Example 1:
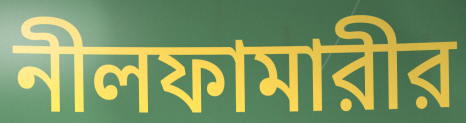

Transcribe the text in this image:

নীলফামারীর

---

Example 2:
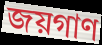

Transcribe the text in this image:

জয়গাণ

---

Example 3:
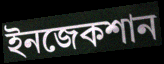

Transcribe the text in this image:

ইনজেকশান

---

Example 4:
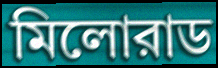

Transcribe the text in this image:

মিলোরাড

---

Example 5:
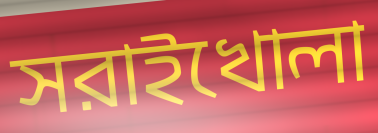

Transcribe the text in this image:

সরাইখোলা